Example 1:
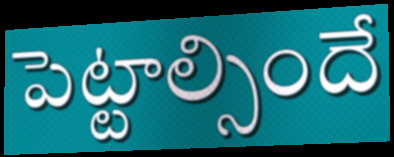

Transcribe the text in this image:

పెట్టాల్సిందే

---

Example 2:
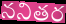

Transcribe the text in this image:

ననితర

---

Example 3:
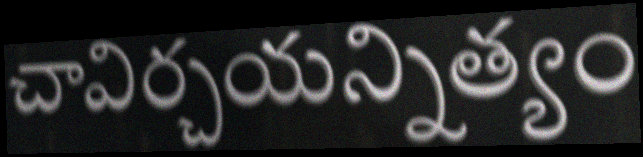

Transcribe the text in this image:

చావిర్చయన్నిత్యం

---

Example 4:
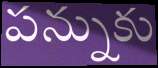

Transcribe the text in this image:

పన్నుకు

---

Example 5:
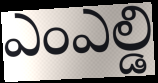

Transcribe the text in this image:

ఎంఎల్డి